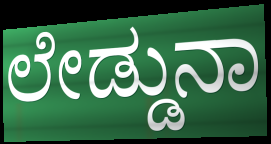
ಲೇಡ್ಡುನಾ